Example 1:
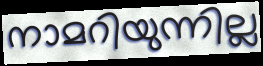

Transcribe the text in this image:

നാമറിയുന്നില്ല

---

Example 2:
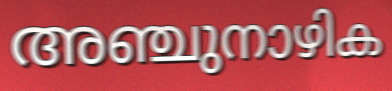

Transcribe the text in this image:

അഞ്ചുനാഴിക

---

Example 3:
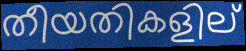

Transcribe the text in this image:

തീയതികളില്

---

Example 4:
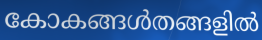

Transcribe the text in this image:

കോകങ്ങൾതങ്ങളിൽ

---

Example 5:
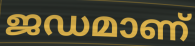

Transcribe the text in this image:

ജഡമാണ്